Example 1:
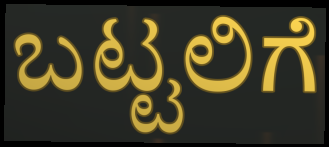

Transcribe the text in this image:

ಬಟ್ಟಲಿಗೆ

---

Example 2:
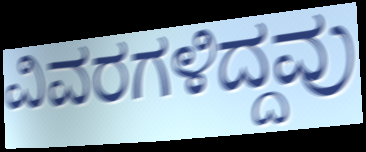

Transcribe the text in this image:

ವಿವರಗಳಿದ್ದವು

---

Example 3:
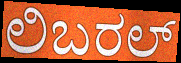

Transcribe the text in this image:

ಲಿಬರಲ್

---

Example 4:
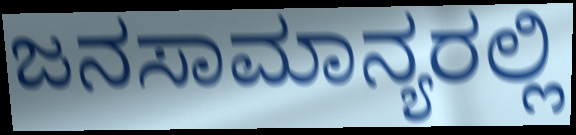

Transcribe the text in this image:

ಜನಸಾಮಾನ್ಯರಲ್ಲಿ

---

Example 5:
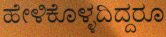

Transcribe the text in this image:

ಹೇಳಿಕೊಳ್ಳದಿದ್ದರೂ